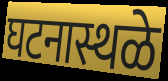
घटनास्थळे